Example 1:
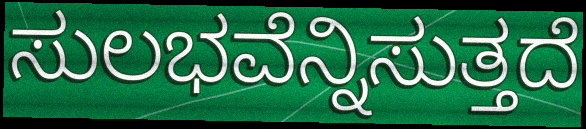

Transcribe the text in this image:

ಸುಲಭವೆನ್ನಿಸುತ್ತದೆ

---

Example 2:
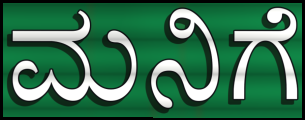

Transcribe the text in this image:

ಮನಿಗೆ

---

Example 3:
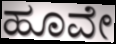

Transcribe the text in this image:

ಹೂವೇ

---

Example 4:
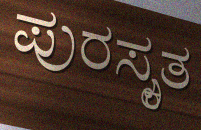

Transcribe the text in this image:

ಪುರಸ್ಕೃತ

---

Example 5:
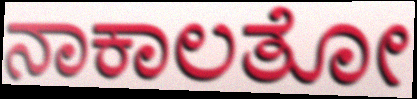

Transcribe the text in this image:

ನಾಕಾಲತೋ